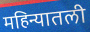
महिन्यातली